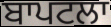
ਬਾਪਟਲਾ